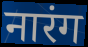
नारंग